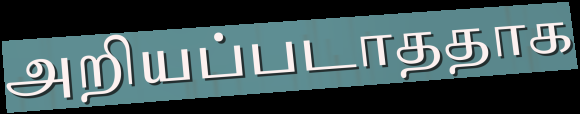
அறியப்படாததாக